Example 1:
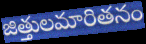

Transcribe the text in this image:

జిత్తులమారితనం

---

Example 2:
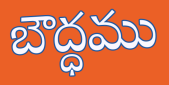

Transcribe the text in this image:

బౌద్ధము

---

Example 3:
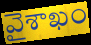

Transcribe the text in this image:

వైశాఖం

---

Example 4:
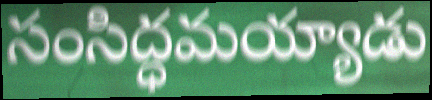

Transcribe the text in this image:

సంసిద్ధమయ్యాడు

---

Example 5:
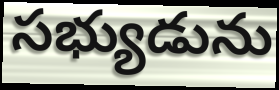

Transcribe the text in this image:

సభ్యుడును